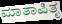
ಮಾತಾಪಿತೃ